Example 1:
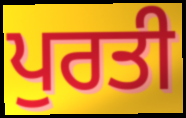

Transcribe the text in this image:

ਪੁਰਤੀ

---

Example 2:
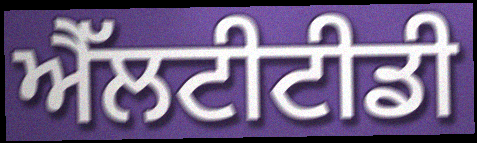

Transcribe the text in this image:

ਐੱਲਟੀਟੀਡੀ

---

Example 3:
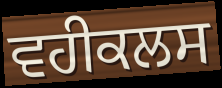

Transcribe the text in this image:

ਵਹੀਕਲਸ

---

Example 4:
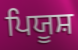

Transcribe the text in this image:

ਪਿਯੂਸ਼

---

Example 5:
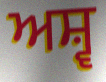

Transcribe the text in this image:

ਅਸ਼੍ਵ